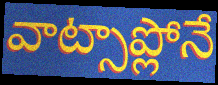
వాట్సాప్లోనే